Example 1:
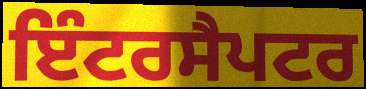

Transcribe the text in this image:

ਇੰਟਰਸੈਪਟਰ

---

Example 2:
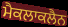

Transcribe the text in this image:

ਮੈਕਲਾਕਲੈਨ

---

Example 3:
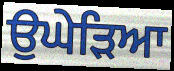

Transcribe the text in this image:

ਉਘੇੜਿਆ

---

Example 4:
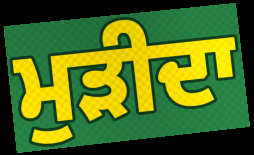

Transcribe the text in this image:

ਮੁੜੀਦਾ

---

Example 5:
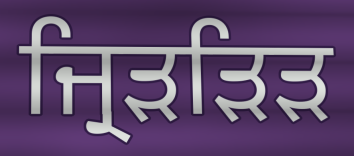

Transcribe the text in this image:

ਜ੍ਰਿੜੜਿੜ